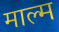
माल्म